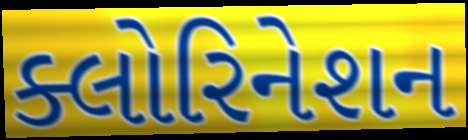
ક્લોરિનેશન